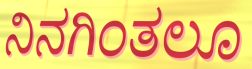
ನಿನಗಿಂತಲೂ